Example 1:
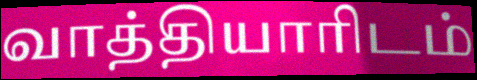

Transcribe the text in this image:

வாத்தியாரிடம்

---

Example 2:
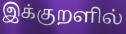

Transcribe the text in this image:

இக்குறளில்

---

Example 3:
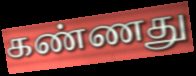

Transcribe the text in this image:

கண்ணது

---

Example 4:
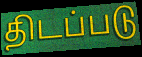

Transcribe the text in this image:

திடப்படு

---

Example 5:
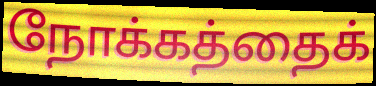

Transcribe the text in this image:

நோக்கத்தைக்